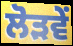
ਲੋੜਵੇਂ